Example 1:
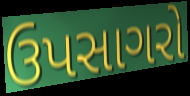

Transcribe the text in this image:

ઉપસાગરો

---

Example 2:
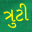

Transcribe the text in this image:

ત્રુટી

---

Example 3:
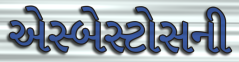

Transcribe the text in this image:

એસ્બેસ્ટોસની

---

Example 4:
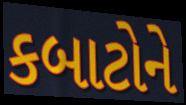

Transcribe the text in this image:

કબાટોને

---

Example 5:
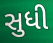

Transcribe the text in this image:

સુધી